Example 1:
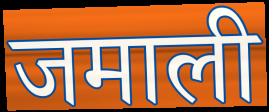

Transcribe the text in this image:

जमाली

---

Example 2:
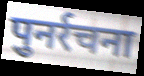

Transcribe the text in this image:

पुनर्रचना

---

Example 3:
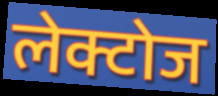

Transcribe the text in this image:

लेक्टोज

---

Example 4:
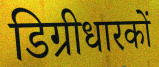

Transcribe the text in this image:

डिग्रीधारकों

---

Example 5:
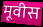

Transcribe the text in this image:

मूवीस